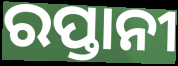
ରପ୍ତାନୀ